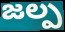
జల్ప